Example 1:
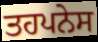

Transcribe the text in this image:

ਤਹਪਨੇਸ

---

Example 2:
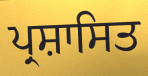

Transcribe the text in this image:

ਪ੍ਰਸ਼ਾਸਿਤ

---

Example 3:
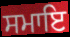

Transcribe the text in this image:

ਸਮਾਇ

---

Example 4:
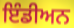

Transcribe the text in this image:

ਇੰਡੀਅਨ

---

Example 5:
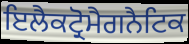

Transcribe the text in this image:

ਇਲੈਕਟ੍ਰੋਮੈਗਨੈਟਿਕ